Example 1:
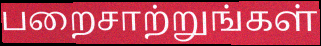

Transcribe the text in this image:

பறைசாற்றுங்கள்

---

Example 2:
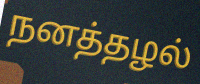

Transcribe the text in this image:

நனத்தழல்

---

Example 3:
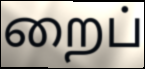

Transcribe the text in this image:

றைப்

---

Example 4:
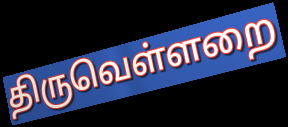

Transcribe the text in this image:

திருவெள்ளறை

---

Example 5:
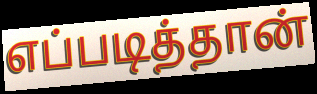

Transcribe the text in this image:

எப்படித்தான்